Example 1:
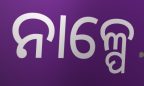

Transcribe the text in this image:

ନାଳ୍ପେ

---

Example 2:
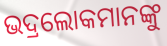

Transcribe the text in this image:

ଭଦ୍ରଲୋକମାନଙ୍କୁ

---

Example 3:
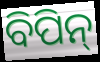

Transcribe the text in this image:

ବିପିନ୍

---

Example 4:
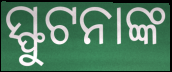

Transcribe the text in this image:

ସ୍ଫୁଟନାଙ୍କ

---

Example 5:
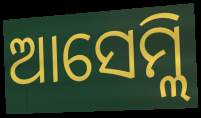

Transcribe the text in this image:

ଆସେମ୍ଲି